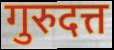
गुरुदत्त